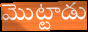
మొట్టాడు